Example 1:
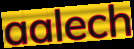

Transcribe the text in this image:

aalech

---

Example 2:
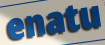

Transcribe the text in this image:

enatu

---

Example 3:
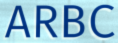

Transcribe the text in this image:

ARBC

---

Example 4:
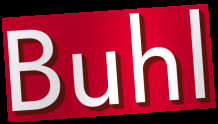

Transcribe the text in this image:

Buhl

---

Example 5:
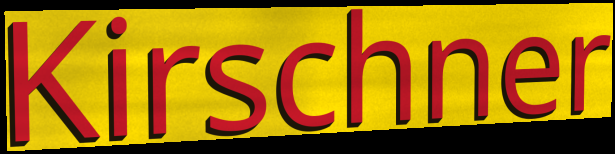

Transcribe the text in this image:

Kirschner